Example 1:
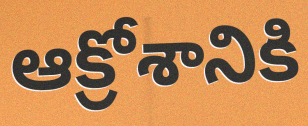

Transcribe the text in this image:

ఆక్రోశానికి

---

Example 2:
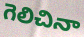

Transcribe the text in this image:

గెలిచినా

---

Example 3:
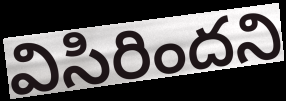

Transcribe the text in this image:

విసిరిందని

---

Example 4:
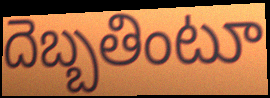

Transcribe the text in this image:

దెబ్బతింటూ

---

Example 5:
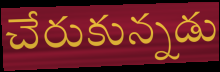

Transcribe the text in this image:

చేరుకున్నడు